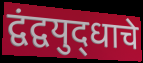
द्वंद्वयुद्धाचे